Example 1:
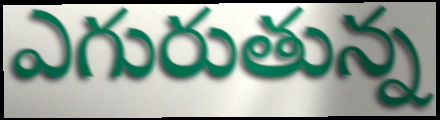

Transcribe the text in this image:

ఎగురుతున్న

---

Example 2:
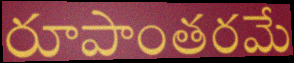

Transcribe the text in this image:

రూపాంతరమే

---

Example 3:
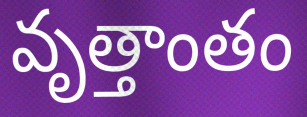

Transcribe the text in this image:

వృత్తాంతం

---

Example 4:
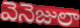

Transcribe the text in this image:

వెనెజులా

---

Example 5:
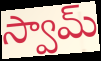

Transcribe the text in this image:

స్వామ్